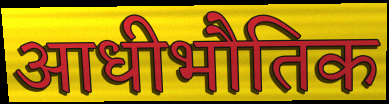
आधीभौतिक